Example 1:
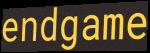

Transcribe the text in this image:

endgame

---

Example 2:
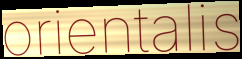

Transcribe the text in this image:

orientalis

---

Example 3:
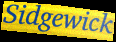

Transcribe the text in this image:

Sidgewick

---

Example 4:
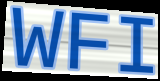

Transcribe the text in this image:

WFI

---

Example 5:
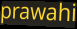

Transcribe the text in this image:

prawahi